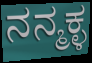
ನನ್ಮಕ್ಳ